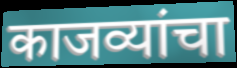
काजव्यांचा